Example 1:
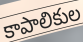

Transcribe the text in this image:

కాపాలికుల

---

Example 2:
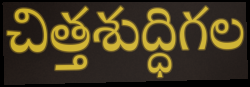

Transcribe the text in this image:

చిత్తశుద్ధిగల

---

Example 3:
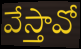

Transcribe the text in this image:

వేస్తావో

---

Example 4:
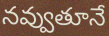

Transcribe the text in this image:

నవ్వుతూనే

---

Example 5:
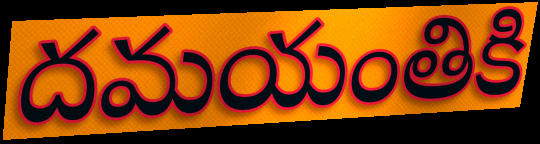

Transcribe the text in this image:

దమయంతికి